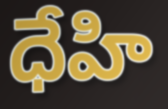
ధేహి